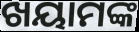
ଖୟାମଙ୍କ